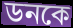
ডনকে